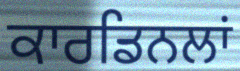
ਕਾਰਡਿਨਲਾਂ